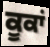
ਕੂਕਾਂ